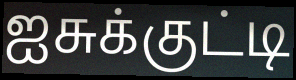
ஐசுக்குட்டி